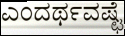
ಎಂದರ್ಥವಷ್ಟೆ